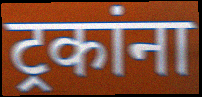
ट्रकांना